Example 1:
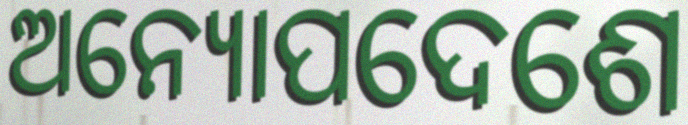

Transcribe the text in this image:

ଅନ୍ୟୋପଦେଶେ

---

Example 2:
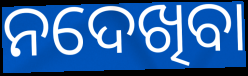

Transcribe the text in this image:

ନଦେଖିବା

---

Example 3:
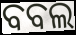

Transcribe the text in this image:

ବବଲ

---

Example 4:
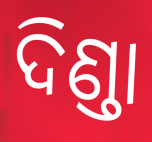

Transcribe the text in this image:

ଦିଣ୍ଡା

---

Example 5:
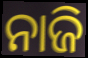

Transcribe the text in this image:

ନାଜି